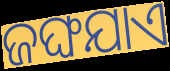
ଜଙ୍ଘଯାଏ